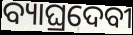
ବ୍ୟାଘ୍ରଦେବୀ